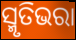
ସ୍ମୃତିଭରା